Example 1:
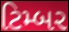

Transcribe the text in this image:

ટિમ્બર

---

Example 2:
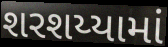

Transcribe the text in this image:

શરશય્યામાં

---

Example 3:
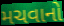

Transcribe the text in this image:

મચવાનો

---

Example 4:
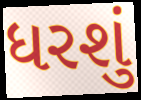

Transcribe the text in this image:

ધરશું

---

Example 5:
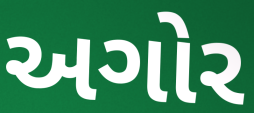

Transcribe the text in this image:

અગોર